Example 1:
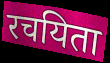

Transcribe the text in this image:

रचयिता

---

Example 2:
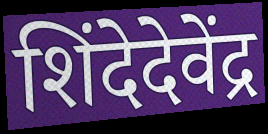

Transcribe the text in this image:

शिंदेदेवेंद्र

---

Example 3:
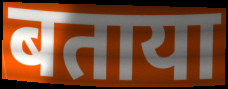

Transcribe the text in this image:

बताया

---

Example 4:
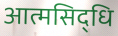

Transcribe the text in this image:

आत्मसिद्धि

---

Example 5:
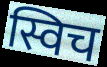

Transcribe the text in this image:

स्विच